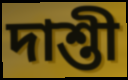
দাশ্তী